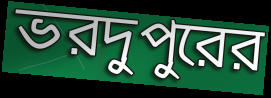
ভরদুপুরের